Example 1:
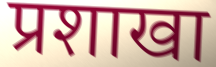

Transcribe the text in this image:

प्रशाखा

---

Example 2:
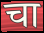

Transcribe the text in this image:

चा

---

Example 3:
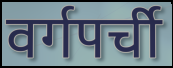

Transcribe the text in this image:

वर्गपर्ची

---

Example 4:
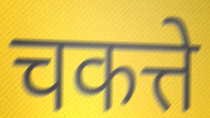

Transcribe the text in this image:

चकत्ते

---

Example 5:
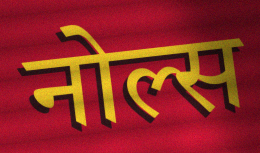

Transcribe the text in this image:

नोल्स